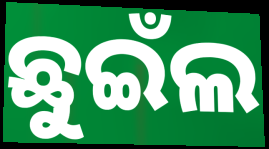
ଛୁଇଁଲ